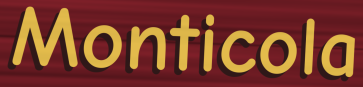
Monticola